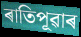
ৰাতিপূৱাৰ